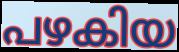
പഴകിയ